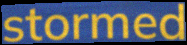
stormed